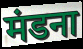
मंडना